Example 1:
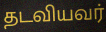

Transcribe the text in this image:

தடவியவர்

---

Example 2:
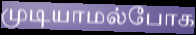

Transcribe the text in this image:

முடியாமல்போக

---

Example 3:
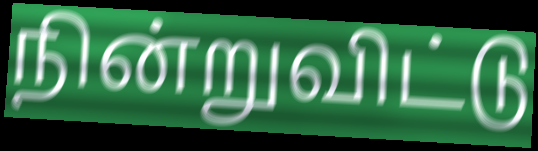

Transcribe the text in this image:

நின்றுவிட்டு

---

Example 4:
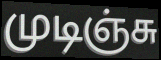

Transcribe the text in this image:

முடிஞ்சு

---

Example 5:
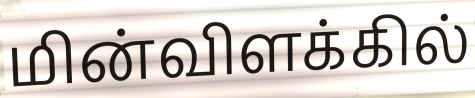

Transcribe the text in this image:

மின்விளக்கில்